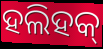
ହଲିହକ୍